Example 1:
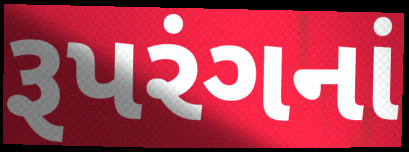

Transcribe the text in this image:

રૂપરંગનાં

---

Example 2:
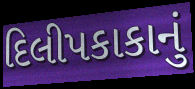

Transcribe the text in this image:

દિલીપકાકાનું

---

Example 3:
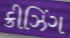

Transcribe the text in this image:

ક્રીઝિંગ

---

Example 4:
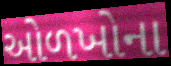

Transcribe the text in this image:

ઓળખોના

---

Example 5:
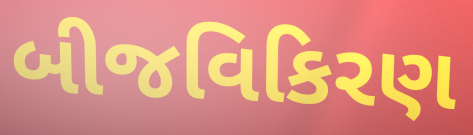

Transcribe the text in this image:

બીજવિકિરણ